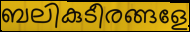
ബലികുടീരങ്ങളേ